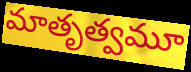
మాతృత్వమూ